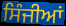
ਸਿੰਜੀਆਂ